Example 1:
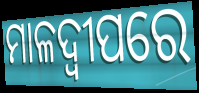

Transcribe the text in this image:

ମାଳଦ୍ବୀପରେ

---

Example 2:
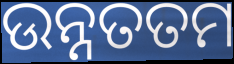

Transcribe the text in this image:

ଉନ୍ନତତମ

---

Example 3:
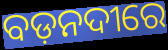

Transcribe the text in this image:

ବଡ଼ନଦୀରେ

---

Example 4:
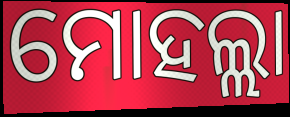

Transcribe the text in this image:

ମୋହଲ୍ଲା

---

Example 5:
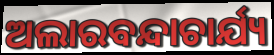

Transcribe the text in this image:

ଅଲାରବନ୍ଦାଚାର୍ଯ୍ୟ